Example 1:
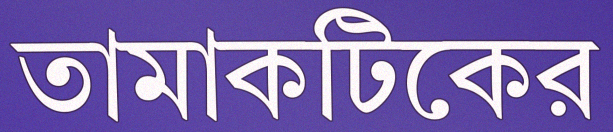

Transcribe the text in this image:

তামাকটিকের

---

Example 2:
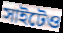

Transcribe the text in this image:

সাইটেও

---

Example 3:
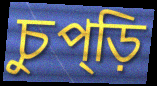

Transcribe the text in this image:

চুপ্‌ড়ি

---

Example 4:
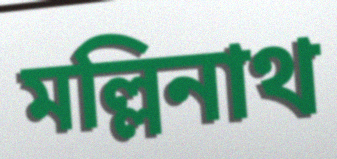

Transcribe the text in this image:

মল্লিনাথ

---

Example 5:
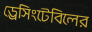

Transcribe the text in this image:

ড্রেসিংটেবিলের